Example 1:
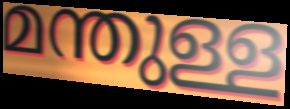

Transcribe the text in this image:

മന്തുള്ള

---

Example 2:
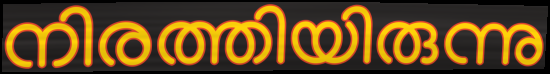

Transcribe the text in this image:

നിരത്തിയിരുന്നു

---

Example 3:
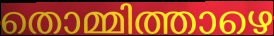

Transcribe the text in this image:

തൊമ്മിത്താഴെ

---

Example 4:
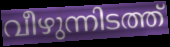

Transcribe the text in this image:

വീഴുന്നിടത്ത്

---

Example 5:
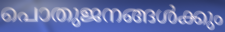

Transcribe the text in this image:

പൊതുജനങ്ങൾക്കും